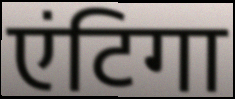
एंटिगा